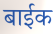
बाईक